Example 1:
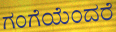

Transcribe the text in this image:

ಗಂಗೆಯೆಂದರೆ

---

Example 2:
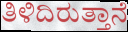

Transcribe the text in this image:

ತಿಳಿದಿರುತ್ತಾನೆ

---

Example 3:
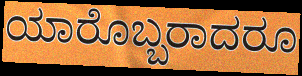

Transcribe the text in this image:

ಯಾರೊಬ್ಬರಾದರೂ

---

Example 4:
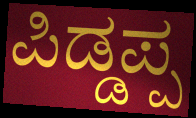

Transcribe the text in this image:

ಪಿಡ್ಡಪ್ಪ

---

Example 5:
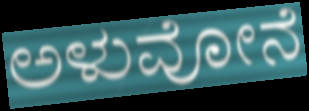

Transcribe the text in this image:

ಅಳುವೋನೆ